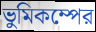
ভুমিকম্পের